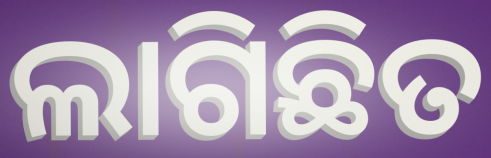
ଲାଗିଛିତ